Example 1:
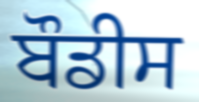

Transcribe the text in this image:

ਬੌਡੀਸ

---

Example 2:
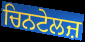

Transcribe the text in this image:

ਚਿਨਟੇਲਜ਼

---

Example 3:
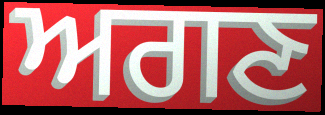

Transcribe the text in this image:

ਅਗਣ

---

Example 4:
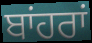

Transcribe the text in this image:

ਬਾਂਹਰਾਂ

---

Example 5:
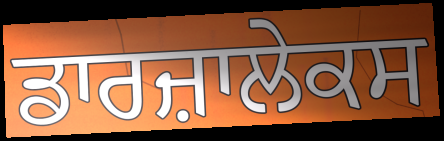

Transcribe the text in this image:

ਡਾਰਜ਼ਾਲੇਕਸ